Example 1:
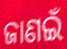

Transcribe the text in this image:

ଜାଣଇଁ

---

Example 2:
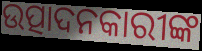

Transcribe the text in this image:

ଉତ୍ପାଦନକାରୀଙ୍କ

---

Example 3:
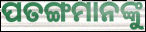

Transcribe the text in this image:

ପତଙ୍ଗମାନଙ୍କୁ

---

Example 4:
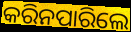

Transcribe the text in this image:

କରିନପାରିଲେ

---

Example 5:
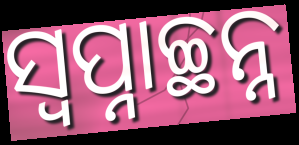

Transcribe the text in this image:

ସ୍ଵପ୍ନାଚ୍ଛନ୍ନ